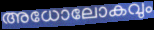
അധോലോകവും